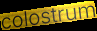
colostrum